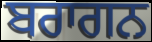
ਬਰਾਗਨ